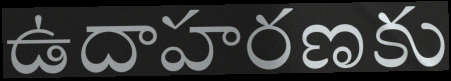
ఉదాహరణకు